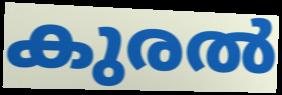
കുരൽ